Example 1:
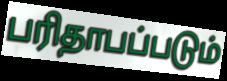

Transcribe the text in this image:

பரிதாபப்படும்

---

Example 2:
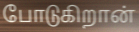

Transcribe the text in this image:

போடுகிறான்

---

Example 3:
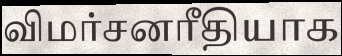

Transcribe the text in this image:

விமர்சனரீதியாக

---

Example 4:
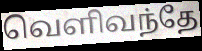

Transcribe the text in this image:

வெளிவந்தே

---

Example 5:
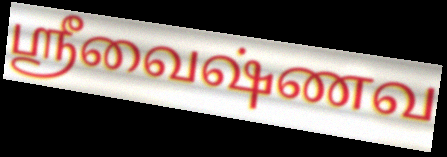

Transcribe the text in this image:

ஸ்ரீவைஷ்ணவ